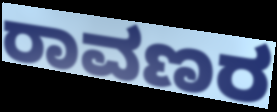
ರಾವಣರ